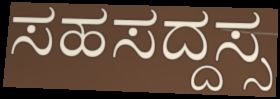
ಸಹಸದ್ದಸ್ಸ